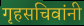
गृहसचिवांनी